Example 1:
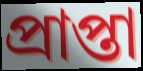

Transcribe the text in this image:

প্রাপ্তা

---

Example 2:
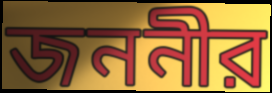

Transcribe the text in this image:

জননীর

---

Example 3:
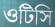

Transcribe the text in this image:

ওটিসি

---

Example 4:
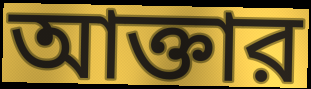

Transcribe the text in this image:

আক্তার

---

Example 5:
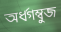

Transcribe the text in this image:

অর্ধগম্বুজ